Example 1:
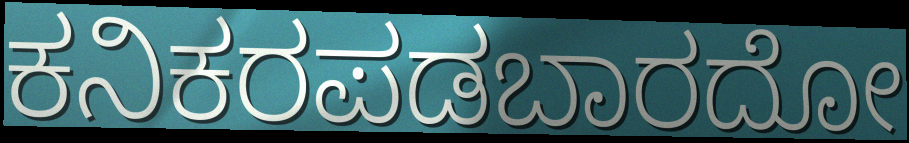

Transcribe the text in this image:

ಕನಿಕರಪಡಬಾರದೋ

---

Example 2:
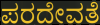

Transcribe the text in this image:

ಪರದೇವತೆ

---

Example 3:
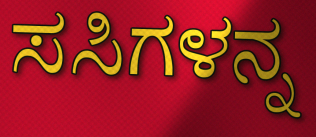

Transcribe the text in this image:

ಸಸಿಗಳನ್ನ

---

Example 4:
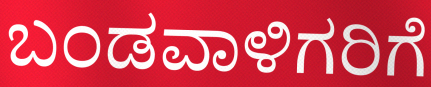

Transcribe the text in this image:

ಬಂಡವಾಳಿಗರಿಗೆ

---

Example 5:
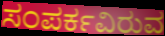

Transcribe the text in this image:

ಸಂಪರ್ಕವಿರುವ